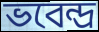
ভবেন্দ্ৰ